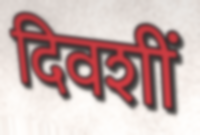
दिवशीं